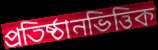
প্রতিষ্ঠানভিত্তিক